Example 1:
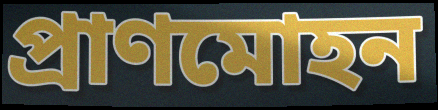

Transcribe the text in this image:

প্রাণমোহন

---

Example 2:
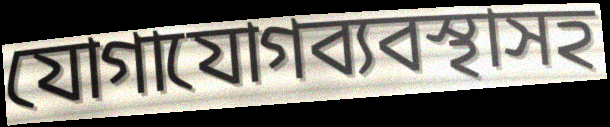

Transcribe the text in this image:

যোগাযোগব্যবস্থাসহ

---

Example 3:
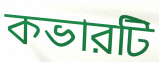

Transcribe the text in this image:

কভারটি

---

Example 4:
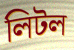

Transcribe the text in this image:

লিটল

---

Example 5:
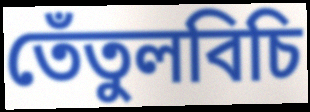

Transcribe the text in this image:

তেঁতুলবিচি